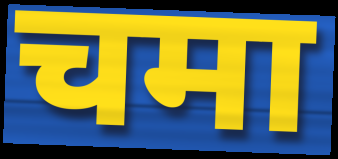
चमा